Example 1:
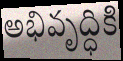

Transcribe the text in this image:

అభివృద్ధికి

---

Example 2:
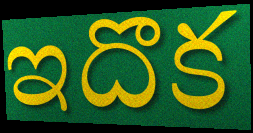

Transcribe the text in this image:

ఇదొక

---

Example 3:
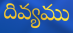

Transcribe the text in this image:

దివ్యము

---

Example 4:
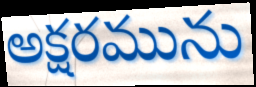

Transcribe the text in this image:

అక్షరమును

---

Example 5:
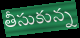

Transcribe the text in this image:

తీసుకున్న